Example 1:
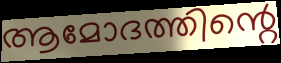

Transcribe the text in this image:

ആമോദത്തിന്റെ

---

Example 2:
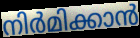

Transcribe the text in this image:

നിർമിക്കാൻ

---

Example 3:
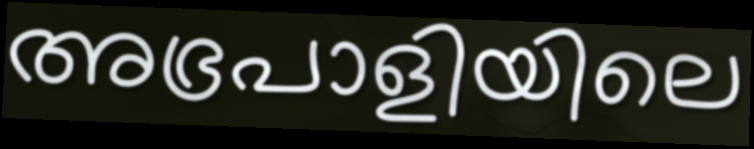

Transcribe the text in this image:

അഭ്രപാളിയിലെ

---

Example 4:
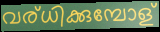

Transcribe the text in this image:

വര്ധിക്കുമ്പോള്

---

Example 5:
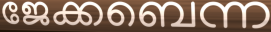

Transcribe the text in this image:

ജേക്കബെന്ന